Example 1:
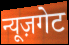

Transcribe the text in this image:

न्यूज़गेट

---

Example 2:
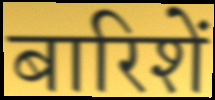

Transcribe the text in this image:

बारिशें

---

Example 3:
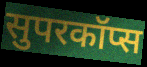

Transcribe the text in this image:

सुपरकॉप्स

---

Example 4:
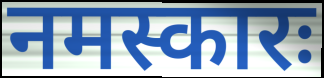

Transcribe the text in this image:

नमस्कारः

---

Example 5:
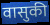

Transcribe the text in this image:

वासुकी